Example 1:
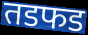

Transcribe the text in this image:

तडफड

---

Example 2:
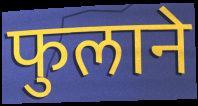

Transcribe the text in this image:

फुलाने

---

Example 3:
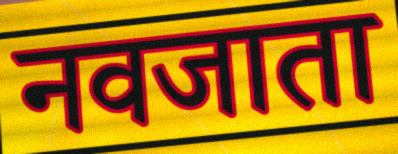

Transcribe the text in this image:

नवजाता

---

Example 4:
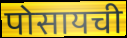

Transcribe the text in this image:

पोसायची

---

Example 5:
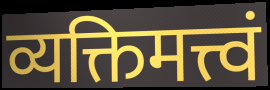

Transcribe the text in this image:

व्यक्तिमत्त्वं